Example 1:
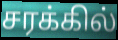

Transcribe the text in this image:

சரக்கில்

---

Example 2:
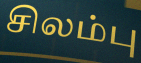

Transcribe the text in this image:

சிலம்பு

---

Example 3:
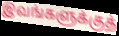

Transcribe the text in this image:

இவங்களுக்குத்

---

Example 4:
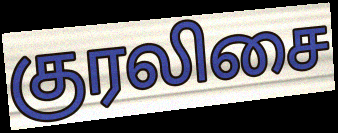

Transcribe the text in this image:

குரலிசை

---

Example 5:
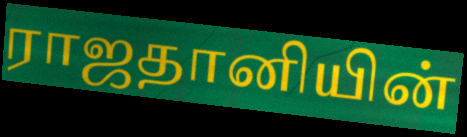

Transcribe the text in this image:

ராஜதானியின்